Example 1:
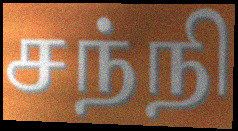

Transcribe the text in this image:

சந்நி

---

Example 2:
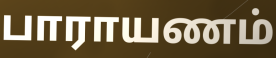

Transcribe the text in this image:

பாராயணம்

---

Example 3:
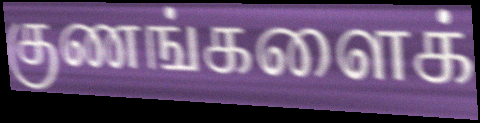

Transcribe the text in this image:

குணங்களைக்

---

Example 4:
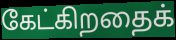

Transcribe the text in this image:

கேட்கிறதைக்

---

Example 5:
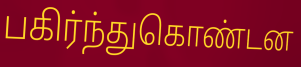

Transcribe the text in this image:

பகிர்ந்துகொண்டன